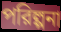
পরিল্পনা